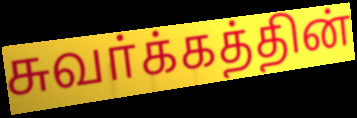
சுவர்க்கத்தின்